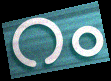
റം